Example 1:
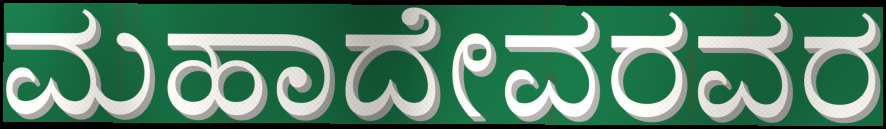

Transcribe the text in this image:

ಮಹಾದೇವರವರ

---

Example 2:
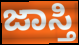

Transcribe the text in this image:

ಜಾಸ್ತಿ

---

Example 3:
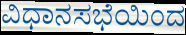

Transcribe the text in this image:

ವಿಧಾನಸಭೆಯಿಂದ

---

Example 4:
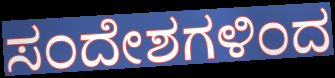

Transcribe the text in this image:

ಸಂದೇಶಗಳಿಂದ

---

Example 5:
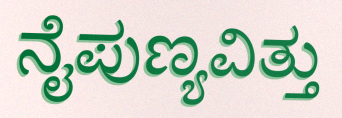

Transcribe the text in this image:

ನೈಪುಣ್ಯವಿತ್ತು